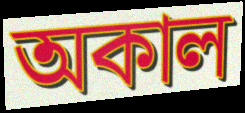
অকাল